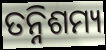
ତନ୍ନିଶମ୍ୟ